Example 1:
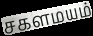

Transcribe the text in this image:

சகளமயம்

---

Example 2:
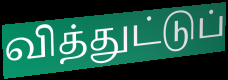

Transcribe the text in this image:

வித்துட்டுப்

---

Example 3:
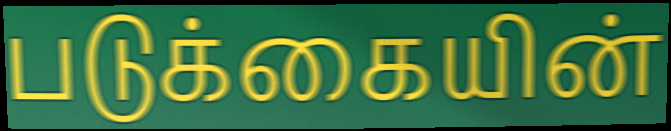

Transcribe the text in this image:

படுக்கையின்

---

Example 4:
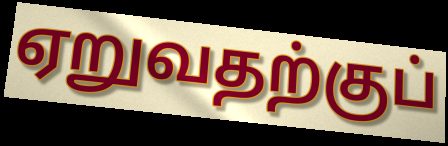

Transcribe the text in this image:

ஏறுவதற்குப்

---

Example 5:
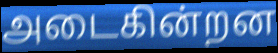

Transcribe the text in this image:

அடைகின்றன